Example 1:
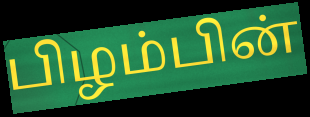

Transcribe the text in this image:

பிழம்பின்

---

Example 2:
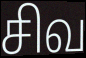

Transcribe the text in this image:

சிவ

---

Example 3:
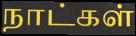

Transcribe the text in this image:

நாட்கள்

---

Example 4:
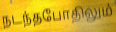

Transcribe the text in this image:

நடந்தபோதிலும்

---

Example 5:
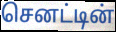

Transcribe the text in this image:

செனட்டின்